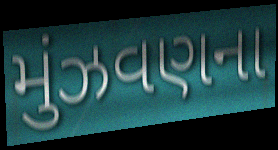
મુંઝવણના